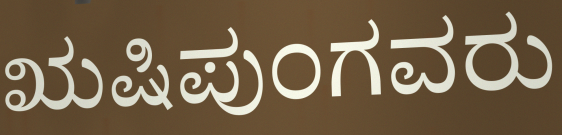
ಋಷಿಪುಂಗವರು